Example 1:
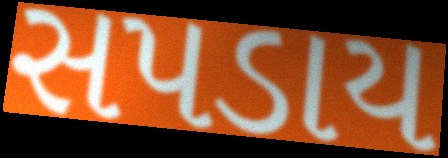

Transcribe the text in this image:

સપડાય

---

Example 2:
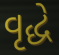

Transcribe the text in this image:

વૃદ્ધે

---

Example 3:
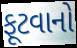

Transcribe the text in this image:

ફૂટવાનો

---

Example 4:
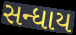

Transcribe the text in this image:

સન્ધાય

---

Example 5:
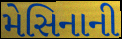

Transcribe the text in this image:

મેસિનાની